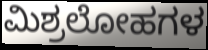
ಮಿಶ್ರಲೋಹಗಳ